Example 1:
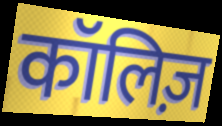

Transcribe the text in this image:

कॉलिज़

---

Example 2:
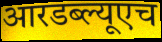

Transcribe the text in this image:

आरडब्ल्यूएच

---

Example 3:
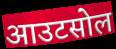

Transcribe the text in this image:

आउटसोल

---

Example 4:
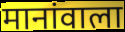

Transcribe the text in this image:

मानांवाला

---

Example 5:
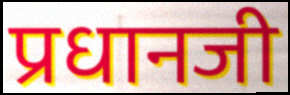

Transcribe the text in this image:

प्रधानजी